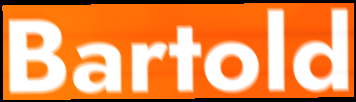
Bartold